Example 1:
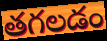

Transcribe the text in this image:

తగలడం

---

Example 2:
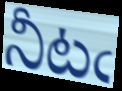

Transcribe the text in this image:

నీటఁ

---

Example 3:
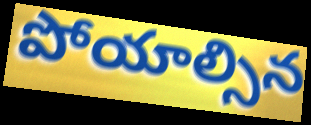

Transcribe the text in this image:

పోయాల్సిన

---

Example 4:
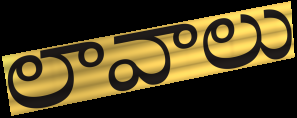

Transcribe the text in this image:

లావాలు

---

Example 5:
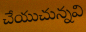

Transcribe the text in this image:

చేయుచున్నవి